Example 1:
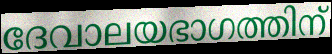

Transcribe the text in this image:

ദേവാലയഭാഗത്തിന്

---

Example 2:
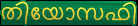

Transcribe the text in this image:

തിയോസഫി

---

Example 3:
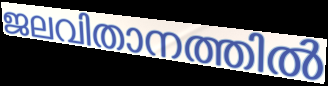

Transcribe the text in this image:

ജലവിതാനത്തിൽ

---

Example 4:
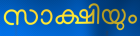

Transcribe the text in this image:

സാക്ഷിയും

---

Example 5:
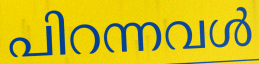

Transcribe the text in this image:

പിറന്നവൾ